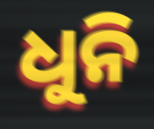
ଧୁନି